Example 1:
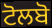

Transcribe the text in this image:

ਟੋਲਬੋ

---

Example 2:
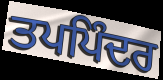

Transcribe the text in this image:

ਤਪਪਿੰਦਰ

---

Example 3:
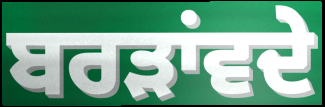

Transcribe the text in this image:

ਬਰੜਾਂਵਦੇ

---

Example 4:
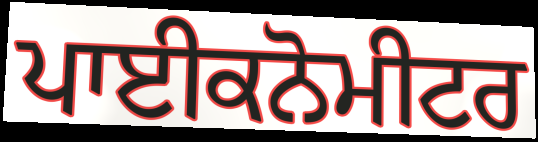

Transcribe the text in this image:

ਪਾਈਕਨੋਮੀਟਰ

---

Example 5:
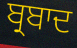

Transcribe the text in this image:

ਬ੍ਰਬਾਦ